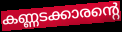
കണ്ണടക്കാരന്റെ